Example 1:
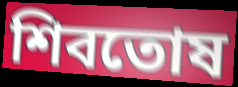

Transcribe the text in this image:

শিবতোষ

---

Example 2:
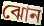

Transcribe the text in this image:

ঝোন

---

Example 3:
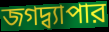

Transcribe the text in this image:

জগদ্ব্যাপার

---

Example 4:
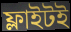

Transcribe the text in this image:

ফ্লাইটই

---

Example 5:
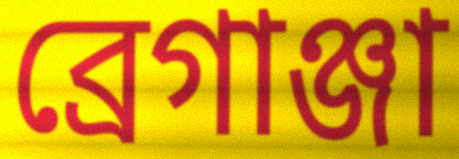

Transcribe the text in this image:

ব্রেগাঞ্জা